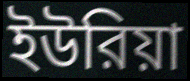
ইউরিয়া